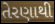
તેરણાથી